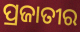
ପ୍ରଜାତୀର